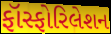
ફૉસ્ફોરિલેશન